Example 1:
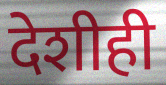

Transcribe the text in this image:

देशीही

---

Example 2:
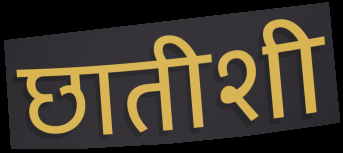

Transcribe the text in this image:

छातीशी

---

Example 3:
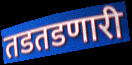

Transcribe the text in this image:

तडतडणारी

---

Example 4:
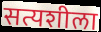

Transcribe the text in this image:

सत्यशीला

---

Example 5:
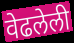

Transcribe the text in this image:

वेढलेली